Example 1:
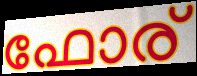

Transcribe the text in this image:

ഫോര്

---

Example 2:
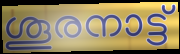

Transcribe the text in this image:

ശൂരനാട്ട്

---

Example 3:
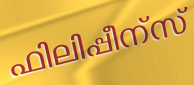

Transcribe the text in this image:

ഫിലിപ്പീന്സ്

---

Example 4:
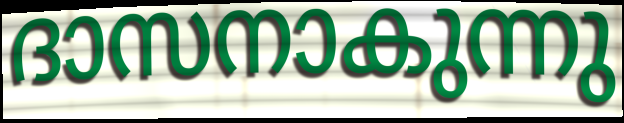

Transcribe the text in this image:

ദാസനാകുന്നു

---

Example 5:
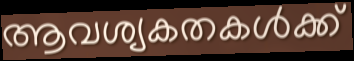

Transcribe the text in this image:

ആവശ്യകതകൾക്ക്